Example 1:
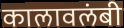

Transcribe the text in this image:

कालावलंबी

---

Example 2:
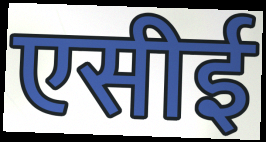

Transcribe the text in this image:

एसीई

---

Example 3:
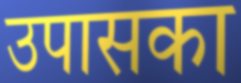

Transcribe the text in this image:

उपासका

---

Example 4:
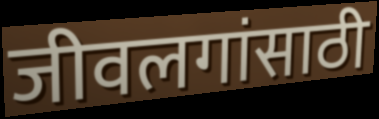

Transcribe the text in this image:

जीवलगांसाठी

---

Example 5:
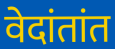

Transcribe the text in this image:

वेदांतांत